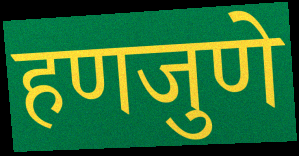
हणजुणे